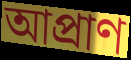
আপ্রাণ